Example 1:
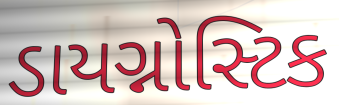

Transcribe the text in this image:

ડાયગ્નોસ્ટિક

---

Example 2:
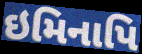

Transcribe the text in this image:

ઇમિનાપિ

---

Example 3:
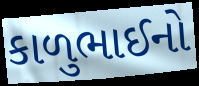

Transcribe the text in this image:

કાળુભાઈનો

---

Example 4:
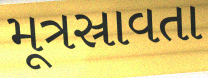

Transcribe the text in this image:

મૂત્રસ્રાવતા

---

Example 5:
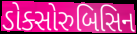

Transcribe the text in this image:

ડોક્સોરુબિસિન